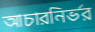
আচারনির্ভর